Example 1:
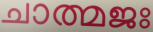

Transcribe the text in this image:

ചാത്മജഃ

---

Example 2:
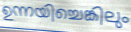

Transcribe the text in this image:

ഉന്നയിച്ചെങ്കിലും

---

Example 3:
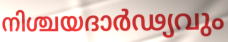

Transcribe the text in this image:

നിശ്ചയദാർഢ്യവും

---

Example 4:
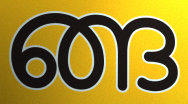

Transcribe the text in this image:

ങ്ങ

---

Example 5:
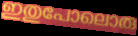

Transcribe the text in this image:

ഇതുപോലൊരു